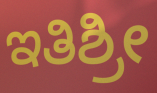
ಇತಿಶ್ರೀ